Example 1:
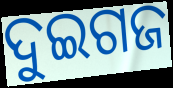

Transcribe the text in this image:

ଦୁଇଗଜ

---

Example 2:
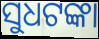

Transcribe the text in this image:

ସୁଧଟଙ୍କା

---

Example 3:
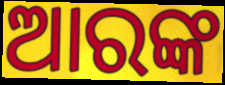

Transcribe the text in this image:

ଆରଙ୍କ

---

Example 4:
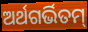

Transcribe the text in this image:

ଅର୍ଥଗର୍ଭିତମ୍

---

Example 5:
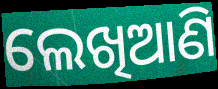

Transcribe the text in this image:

ଲେଖିଆଣି